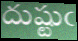
దుష్టుఁ